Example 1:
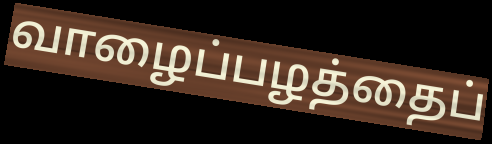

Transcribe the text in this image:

வாழைப்பழத்தைப்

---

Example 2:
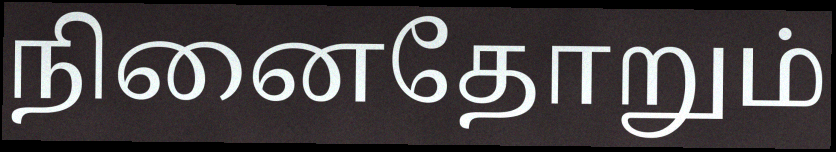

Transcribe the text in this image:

நினைதோறும்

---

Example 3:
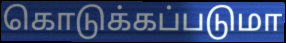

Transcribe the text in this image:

கொடுக்கப்படுமா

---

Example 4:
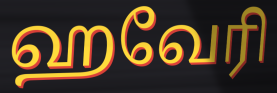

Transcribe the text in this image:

ஹவேரி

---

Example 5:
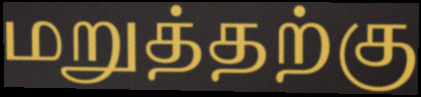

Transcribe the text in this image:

மறுத்தற்கு